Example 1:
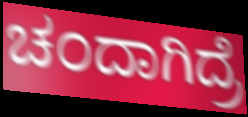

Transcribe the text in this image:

ಚಂದಾಗಿದ್ರೆ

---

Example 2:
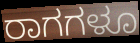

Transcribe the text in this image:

ರಾಗಗಳೂ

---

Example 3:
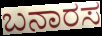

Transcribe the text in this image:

ಬನಾರಸ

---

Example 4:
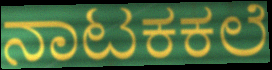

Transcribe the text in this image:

ನಾಟಕಕಲೆ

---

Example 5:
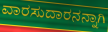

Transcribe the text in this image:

ವಾರಸುದಾರನನ್ನಾಗಿ